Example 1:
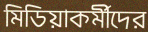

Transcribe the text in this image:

মিডিয়াকর্মীদের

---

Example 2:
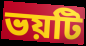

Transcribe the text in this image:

ভয়টি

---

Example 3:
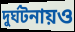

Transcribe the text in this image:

দুর্ঘটনায়ও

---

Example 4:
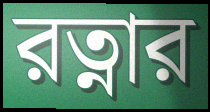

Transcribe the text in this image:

রত্নার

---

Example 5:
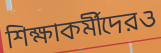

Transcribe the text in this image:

শিক্ষাকর্মীদেরও